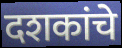
दशकांचे